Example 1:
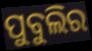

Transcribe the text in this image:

ପୁବୁଲିର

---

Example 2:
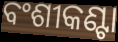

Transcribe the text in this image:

ବଂଶୀକଣ୍ଟା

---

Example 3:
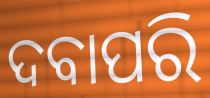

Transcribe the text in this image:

ଦବାପରି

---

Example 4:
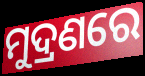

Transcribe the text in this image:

ମୁଦ୍ରଣରେ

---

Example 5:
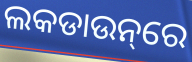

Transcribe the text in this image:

ଲକଡାଉନ୍‌ରେ